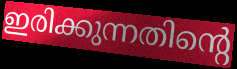
ഇരിക്കുന്നതിന്റെ